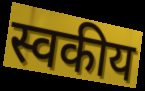
स्वकीय